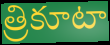
త్రికూటా